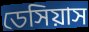
ডেসিয়াস